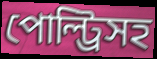
পোল্ট্রিসহ